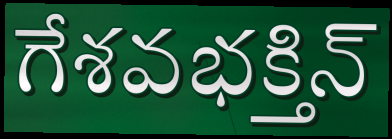
గేశవభక్తిన్